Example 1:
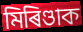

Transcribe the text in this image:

মিৰিণ্ডাক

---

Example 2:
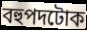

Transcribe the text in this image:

বহুপদটোক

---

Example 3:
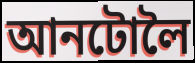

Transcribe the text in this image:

আনটোলৈ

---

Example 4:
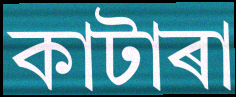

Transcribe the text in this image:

কাটাৰা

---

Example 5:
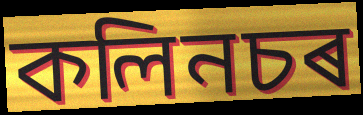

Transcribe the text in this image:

কলিনচৰ